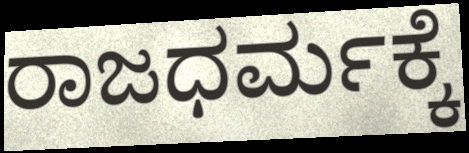
ರಾಜಧರ್ಮಕ್ಕೆ